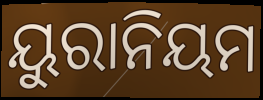
ୟୁରାନିୟମ